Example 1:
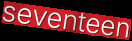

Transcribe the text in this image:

seventeen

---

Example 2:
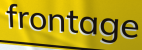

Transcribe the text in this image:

frontage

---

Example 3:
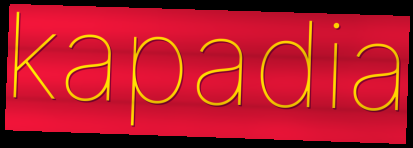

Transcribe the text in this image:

kapadia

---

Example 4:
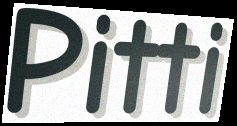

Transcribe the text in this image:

Pitti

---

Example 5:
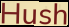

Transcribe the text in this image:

Hush